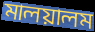
মালয়ালম